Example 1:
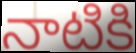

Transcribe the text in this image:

నాటికి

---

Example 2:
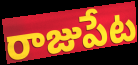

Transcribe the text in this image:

రాజుపేట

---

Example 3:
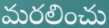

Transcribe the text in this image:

మరలించు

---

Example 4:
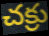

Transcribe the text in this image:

చక్రు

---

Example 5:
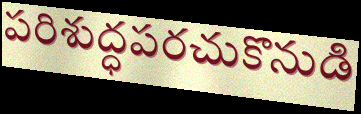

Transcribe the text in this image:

పరిశుద్ధపరచుకొనుడి